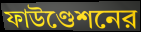
ফাউণ্ডেশনের